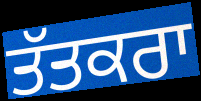
ਤੱਤਕਰਾ